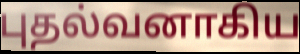
புதல்வனாகிய